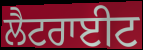
ਲੈਟਰਾਈਟ